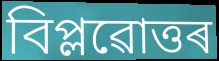
বিপ্লৱোত্তৰ